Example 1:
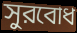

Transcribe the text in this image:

সুরবোধ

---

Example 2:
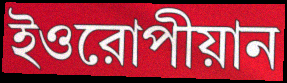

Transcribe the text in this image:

ইওরোপীয়ান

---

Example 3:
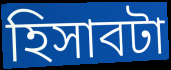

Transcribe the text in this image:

হিসাবটা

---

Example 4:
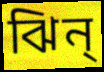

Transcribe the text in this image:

ঝিন্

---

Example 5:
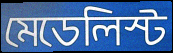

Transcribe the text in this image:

মেডেলিস্ট